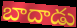
బాదాడు